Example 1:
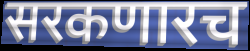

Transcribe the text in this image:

सरकणारच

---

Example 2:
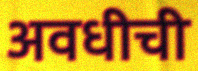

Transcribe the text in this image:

अवधीची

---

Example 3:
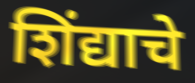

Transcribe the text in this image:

शिंद्याचे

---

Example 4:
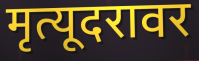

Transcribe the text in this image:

मृत्यूदरावर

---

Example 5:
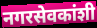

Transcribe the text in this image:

नगरसेवकांशी